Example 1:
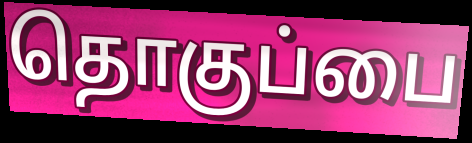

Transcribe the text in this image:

தொகுப்பை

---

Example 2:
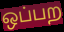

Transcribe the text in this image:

ஒப்பற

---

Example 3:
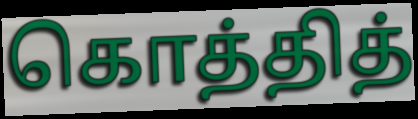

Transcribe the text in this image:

கொத்தித்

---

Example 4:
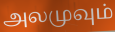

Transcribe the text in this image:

அலமுவும்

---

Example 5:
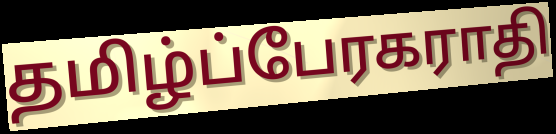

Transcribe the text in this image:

தமிழ்ப்பேரகராதி